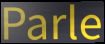
Parle